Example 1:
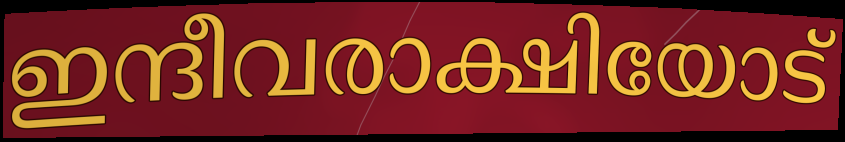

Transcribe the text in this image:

ഇന്ദീവരാക്ഷിയോട്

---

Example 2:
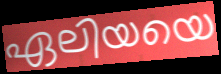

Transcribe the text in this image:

ഏലിയയെ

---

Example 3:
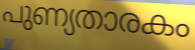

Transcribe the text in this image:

പുണ്യതാരകം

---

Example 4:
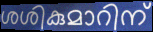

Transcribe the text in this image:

ശശികുമാറിന്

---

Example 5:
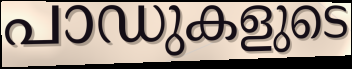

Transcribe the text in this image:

പാഡുകളുടെ